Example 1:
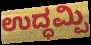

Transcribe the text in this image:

ಉದ್ಧಮ್ಪಿ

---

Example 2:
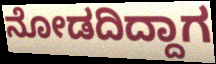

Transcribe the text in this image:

ನೋಡದಿದ್ದಾಗ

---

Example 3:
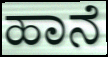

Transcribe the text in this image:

ಹಾನೆ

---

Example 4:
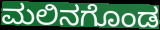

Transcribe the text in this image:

ಮಲಿನಗೊಂಡ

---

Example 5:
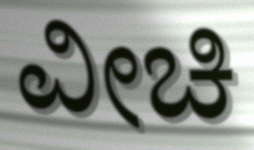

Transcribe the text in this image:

ವೀಚಿ